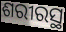
ଶରୀରସ୍ଥ